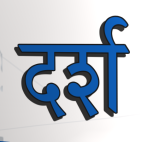
दर्श